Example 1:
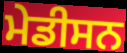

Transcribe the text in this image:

ਮੇਡੀਸਨ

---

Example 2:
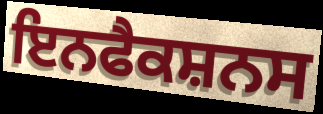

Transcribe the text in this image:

ਇਨਫੈਕਸ਼ਨਸ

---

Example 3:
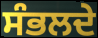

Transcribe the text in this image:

ਸੰਭਲਦੇ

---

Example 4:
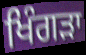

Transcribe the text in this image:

ਖਿੰਗੜਾ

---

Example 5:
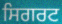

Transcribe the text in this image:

ਸਿਗਰਟ